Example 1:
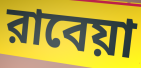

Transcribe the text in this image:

রাবেয়া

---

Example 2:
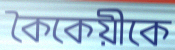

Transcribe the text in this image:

কৈকেয়ীকে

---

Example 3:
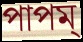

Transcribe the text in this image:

পাপম্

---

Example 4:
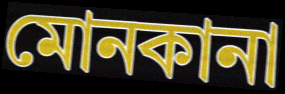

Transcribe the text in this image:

মোনকানা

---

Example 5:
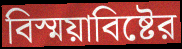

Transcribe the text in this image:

বিস্ময়াবিষ্টের